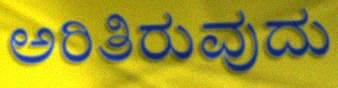
ಅರಿತಿರುವುದು